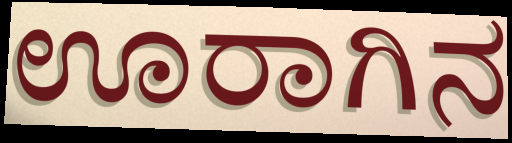
ಊರಾಗಿನ